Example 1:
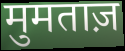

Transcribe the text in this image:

मुमताज़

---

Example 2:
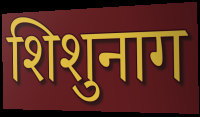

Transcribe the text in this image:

शिशुनाग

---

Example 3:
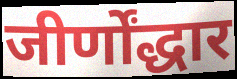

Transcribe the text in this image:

जीर्णोंद्धार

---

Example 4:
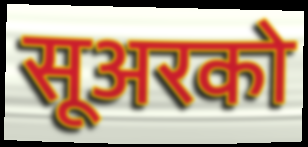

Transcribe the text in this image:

सूअरको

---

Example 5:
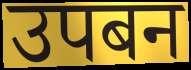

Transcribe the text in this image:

उपबन